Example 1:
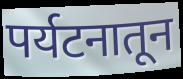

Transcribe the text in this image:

पर्यटनातून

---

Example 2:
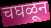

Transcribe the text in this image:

चघळून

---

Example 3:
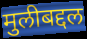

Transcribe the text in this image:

मुलीबद्दल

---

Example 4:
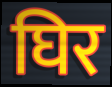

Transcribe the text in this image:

घिर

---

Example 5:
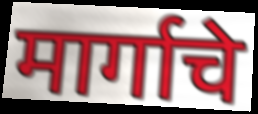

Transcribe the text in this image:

मार्गाचे